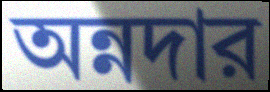
অন্নদার